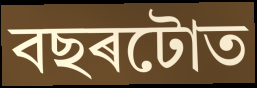
বছৰটোত